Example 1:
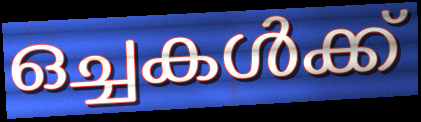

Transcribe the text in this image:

ഒച്ചകൾക്ക്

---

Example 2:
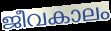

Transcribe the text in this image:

ജീവകാലം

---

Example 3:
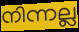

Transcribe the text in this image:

നിന്നല്ല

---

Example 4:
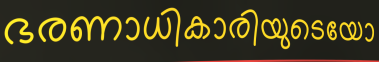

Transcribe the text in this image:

ഭരണാധികാരിയുടെയോ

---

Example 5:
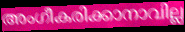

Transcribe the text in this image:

അംഗീകരിക്കാനാവില്ല